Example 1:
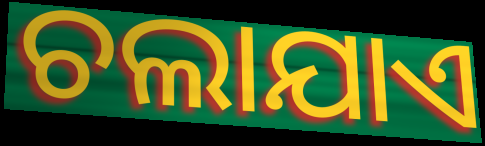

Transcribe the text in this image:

ଚଲାଯାଏ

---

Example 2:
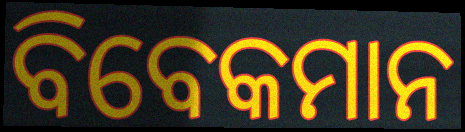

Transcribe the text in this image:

ବିବେକମାନ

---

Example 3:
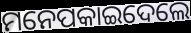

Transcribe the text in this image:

ମନେପକାଇଦେଲେ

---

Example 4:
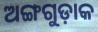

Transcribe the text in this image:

ଅଙ୍ଗଗୁଡ଼ାକ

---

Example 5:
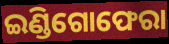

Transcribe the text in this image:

ଇଣ୍ଡିଗୋଫେରା